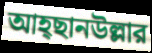
আহ্ছানউল্লার